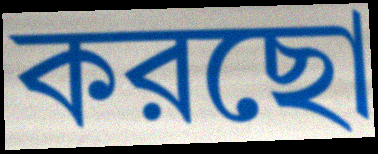
করছো